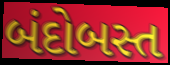
બંદોબસ્ત